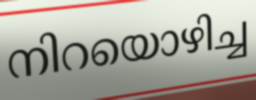
നിറയൊഴിച്ച